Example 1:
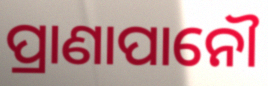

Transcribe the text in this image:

ପ୍ରାଣାପାନୌ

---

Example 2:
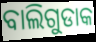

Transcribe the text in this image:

ବାଲିଗୁଡାକ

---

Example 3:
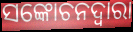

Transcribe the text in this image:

ସଙ୍କୋଚନଦ୍ୱାରା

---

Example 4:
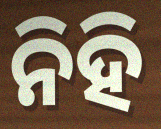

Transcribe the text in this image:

ନିହି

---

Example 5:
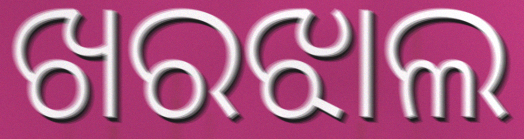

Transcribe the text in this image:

ଖରଝାଲ